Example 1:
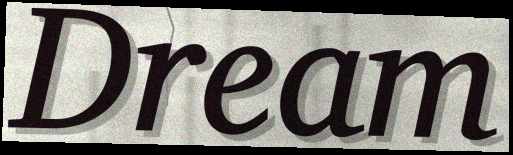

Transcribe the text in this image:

Dream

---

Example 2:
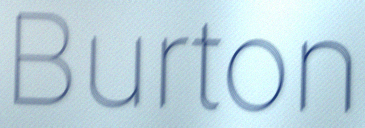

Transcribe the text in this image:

Burton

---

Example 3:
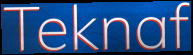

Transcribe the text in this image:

Teknaf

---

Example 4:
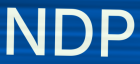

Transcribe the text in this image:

NDP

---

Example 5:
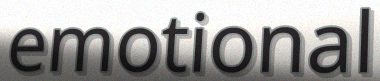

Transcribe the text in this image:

emotional